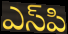
ఎస్‌పి